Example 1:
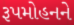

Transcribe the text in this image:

રૂપમોહનને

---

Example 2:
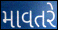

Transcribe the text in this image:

માવતરે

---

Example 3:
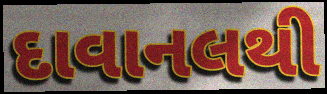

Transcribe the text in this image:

દાવાનલથી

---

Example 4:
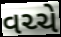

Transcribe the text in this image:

વચ્ચે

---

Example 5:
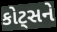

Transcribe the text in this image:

કોટ્સને